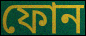
ফোন